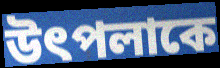
উৎপলাকে